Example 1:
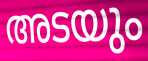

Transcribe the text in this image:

അടയും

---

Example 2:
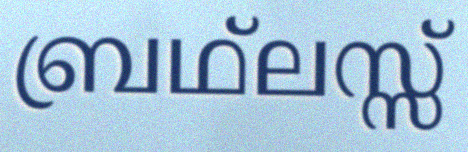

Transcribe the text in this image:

ബ്രഥ്ലസ്സ്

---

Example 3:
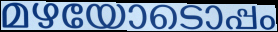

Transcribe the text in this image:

മഴയോടൊപ്പം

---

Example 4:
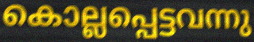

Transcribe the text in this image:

കൊല്ലപ്പെട്ടവന്നു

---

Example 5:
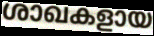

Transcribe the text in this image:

ശാഖകളായ